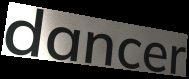
dancer